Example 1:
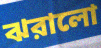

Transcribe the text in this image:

ঝরালো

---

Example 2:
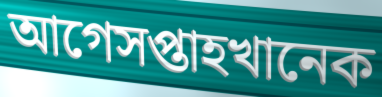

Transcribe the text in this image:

আগেসপ্তাহখানেক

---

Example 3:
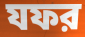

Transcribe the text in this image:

যফর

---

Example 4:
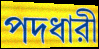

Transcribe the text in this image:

পদধারী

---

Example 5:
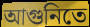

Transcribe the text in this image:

আগুনিতে